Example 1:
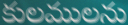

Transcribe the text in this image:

కులములను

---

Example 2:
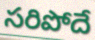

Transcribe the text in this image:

సరిపోదే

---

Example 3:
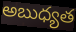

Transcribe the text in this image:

అబుధ్యత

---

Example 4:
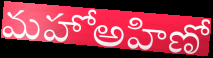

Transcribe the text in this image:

మహోఅహిణో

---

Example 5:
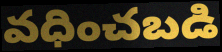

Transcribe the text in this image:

వధించబడి